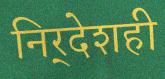
निर्देशही